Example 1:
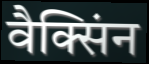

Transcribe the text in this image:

वैक्सिंन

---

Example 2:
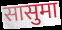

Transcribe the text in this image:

सासुमा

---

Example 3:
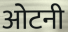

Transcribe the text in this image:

ओटनी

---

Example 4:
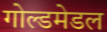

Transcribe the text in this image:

गोल्डमेडल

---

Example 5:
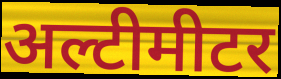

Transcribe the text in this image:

अल्टीमीटर